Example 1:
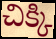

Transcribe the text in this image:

చిక్కి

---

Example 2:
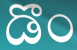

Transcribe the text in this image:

డొం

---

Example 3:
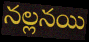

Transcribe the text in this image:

నల్లనయి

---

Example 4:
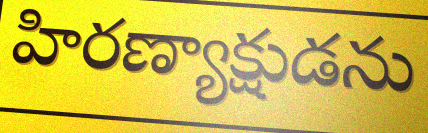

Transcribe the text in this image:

హిరణ్యాక్షుడను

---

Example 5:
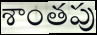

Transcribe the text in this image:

శాంతపు